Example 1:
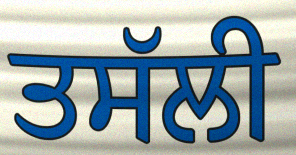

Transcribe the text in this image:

ਤਸੱਲੀ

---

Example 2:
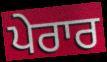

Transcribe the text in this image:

ਪੇਰਾਰ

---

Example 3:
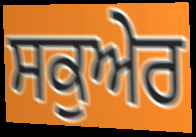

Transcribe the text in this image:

ਸਕੁਅੇਰ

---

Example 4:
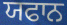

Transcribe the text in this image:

ਯਫਾਨ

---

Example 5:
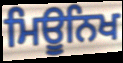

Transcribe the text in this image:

ਮਿਊਨਿਖ